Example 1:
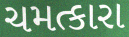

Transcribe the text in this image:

ચમત્કારા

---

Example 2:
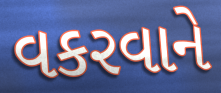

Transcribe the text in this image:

વકરવાને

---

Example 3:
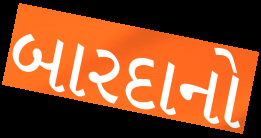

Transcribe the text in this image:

બારદાનો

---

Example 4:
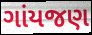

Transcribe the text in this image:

ગાંયજણ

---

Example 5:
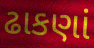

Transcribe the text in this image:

ઢાકણાં